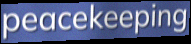
peacekeeping